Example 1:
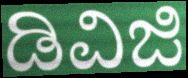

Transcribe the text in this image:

ಡಿವಿಜಿ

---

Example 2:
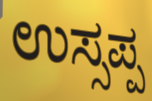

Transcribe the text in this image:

ಉಸ್ಸಪ್ಪ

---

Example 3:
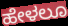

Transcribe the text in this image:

ಹೇಳಲೂ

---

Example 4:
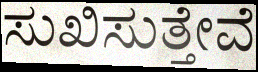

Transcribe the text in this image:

ಸುಖಿಸುತ್ತೇವೆ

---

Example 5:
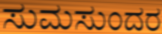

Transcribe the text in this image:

ಸುಮಸುಂದರ